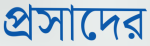
প্রসাদের